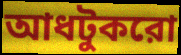
আধটুকরো